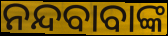
ନନ୍ଦବାବାଙ୍କ